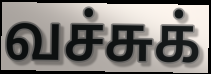
வச்சுக்